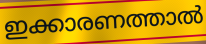
ഇക്കാരണത്താൽ